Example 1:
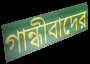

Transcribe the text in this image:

গান্ধীবাদের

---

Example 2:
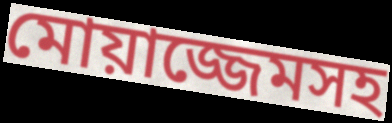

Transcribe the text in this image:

মোয়াজ্জেমসহ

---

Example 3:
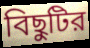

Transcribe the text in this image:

বিছুটির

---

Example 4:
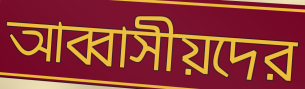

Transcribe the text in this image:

আব্বাসীয়দের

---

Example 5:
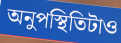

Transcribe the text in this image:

অনুপস্থিতিটাও